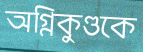
অগ্নিকুণ্ডকে